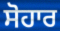
ਸੋਹਾਰ